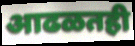
आढळतही